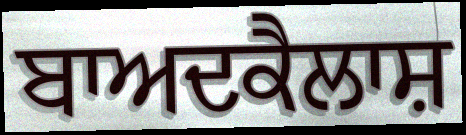
ਬਾਅਦਕੈਲਾਸ਼